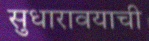
सुधारावयाची